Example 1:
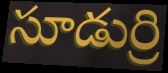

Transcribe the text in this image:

సూడుర్రి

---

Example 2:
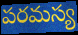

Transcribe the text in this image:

పరమస్య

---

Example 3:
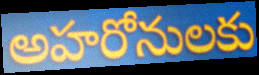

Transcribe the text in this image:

అహరోనులకు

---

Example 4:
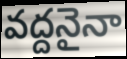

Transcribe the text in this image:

వద్దనైనా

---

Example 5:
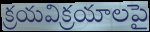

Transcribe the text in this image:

క్రయవిక్రయాలపై